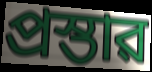
প্ৰস্তাৱ